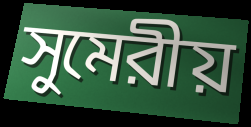
সুমেরীয়